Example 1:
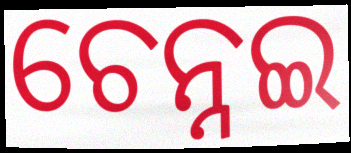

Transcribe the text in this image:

ଚେନ୍ନଇ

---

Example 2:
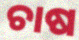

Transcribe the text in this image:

ଚାଷ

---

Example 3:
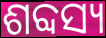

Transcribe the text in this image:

ଶବ୍ଦସ୍ଯ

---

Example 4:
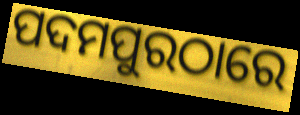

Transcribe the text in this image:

ପଦମପୁରଠାରେ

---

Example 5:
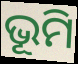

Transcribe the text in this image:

ଭୂମି